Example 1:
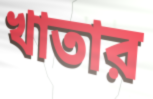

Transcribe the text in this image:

খাতার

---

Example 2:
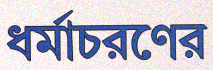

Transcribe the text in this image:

ধর্মাচরণের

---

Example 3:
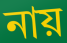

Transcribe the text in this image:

নায়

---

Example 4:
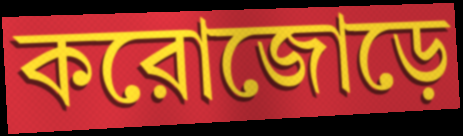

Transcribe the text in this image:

করোজোড়ে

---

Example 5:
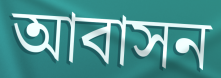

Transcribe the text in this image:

আবাসন